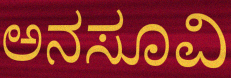
ಅನಸೂವಿ